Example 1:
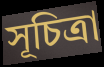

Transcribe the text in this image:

সূচিত্রা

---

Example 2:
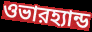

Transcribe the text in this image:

ওভারহ্যান্ড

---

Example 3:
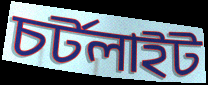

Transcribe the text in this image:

চর্টলাইট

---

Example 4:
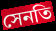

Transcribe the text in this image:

সেনতি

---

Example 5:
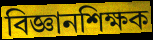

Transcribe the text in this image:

বিজ্ঞানশিক্ষক